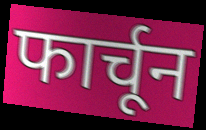
फार्चून